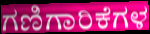
ಗಣಿಗಾರಿಕೆಗಳ